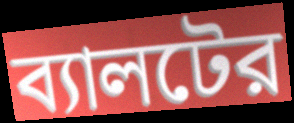
ব্যালটের